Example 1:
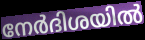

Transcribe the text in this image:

നേർദിശയിൽ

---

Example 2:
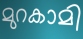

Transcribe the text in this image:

മുറകാമി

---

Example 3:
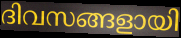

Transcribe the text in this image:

ദിവസങ്ങളായി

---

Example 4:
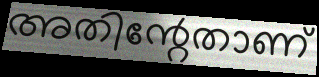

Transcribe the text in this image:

അതിന്റേതാണ്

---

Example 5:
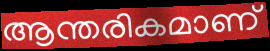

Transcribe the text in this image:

ആന്തരികമാണ്